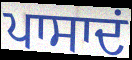
ਪਾਸਾਦਂ